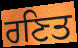
ਰਣਿਤ